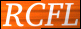
RCFL